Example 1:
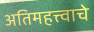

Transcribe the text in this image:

अतिमहत्त्वाचे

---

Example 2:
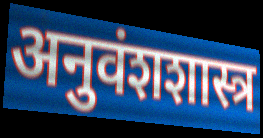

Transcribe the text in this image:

अनुवंशशास्त्र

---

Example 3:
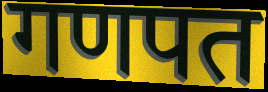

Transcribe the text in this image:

गणपत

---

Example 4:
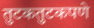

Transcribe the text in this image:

तुटकतुटकपणे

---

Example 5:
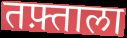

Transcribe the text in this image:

तफ़्ताला